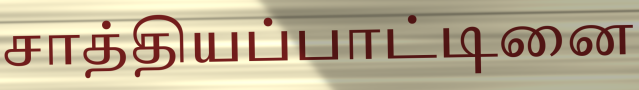
சாத்தியப்பாட்டினை